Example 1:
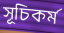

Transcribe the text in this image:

সূচিকৰ্ম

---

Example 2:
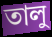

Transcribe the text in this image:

তালু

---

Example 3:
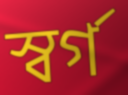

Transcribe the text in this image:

স্বৰ্গ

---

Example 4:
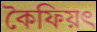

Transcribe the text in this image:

কৈফিয়ৎ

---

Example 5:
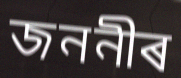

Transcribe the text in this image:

জননীৰ